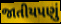
જાતીયપણું